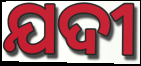
ଯଦୀ